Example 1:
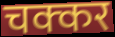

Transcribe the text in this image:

चक्‍कर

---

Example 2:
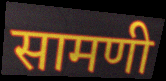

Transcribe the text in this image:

सामणी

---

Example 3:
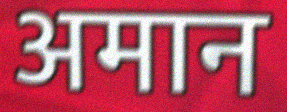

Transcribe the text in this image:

अमान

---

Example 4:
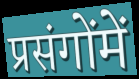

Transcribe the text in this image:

प्रसंगोंमें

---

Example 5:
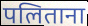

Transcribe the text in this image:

पलिताना